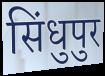
सिंधुपुर